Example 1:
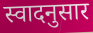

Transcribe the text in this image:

स्वादनुसार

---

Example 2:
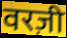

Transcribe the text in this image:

वरज़ी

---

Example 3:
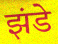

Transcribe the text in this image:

झंडे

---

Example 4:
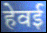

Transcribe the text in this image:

हेवई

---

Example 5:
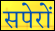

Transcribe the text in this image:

सपेरों